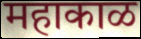
महाकाळ